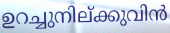
ഉറച്ചുനില്ക്കുവിൻ